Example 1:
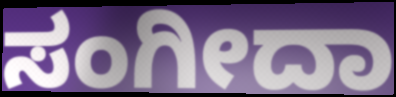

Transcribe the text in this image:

ಸಂಗೀದಾ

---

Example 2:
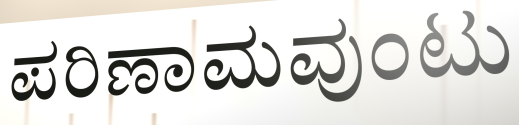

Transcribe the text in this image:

ಪರಿಣಾಮವುಂಟು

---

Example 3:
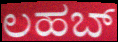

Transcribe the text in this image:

ಲಹಬ್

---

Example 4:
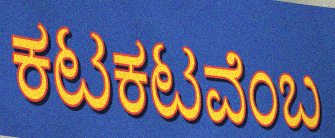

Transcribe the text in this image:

ಕಟಕಟವೆಂಬ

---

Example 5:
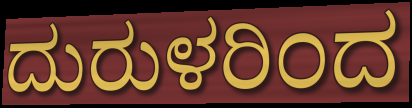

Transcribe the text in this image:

ದುರುಳರಿಂದ